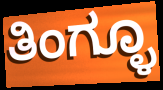
ತಿಂಗ್ಳೂ